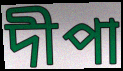
দীপা